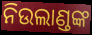
ନିଉଲାଣ୍ଡଙ୍କ